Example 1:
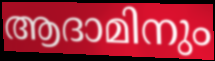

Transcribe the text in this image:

ആദാമിനും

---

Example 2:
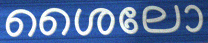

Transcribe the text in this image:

ശൈലോ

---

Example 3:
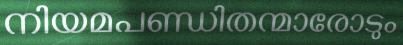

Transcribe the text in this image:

നിയമപണ്ഡിതന്മാരോടും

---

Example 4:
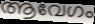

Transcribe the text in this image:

ആവേഗം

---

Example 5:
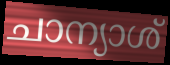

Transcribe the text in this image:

ചാന്യാശ്